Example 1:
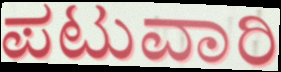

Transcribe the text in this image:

ಪಟುವಾರಿ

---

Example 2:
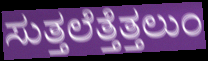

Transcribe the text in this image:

ಸುತ್ತಲೆತ್ತೆತ್ತಲುಂ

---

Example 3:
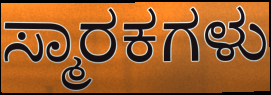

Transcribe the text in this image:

ಸ್ಮಾರಕಗಳು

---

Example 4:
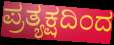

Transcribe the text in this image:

ಪ್ರತ್ಯಕ್ಷದಿಂದ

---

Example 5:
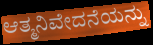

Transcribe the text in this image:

ಆತ್ಮನಿವೇದನೆಯನ್ನು